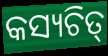
କସ୍ୟଚିତ୍